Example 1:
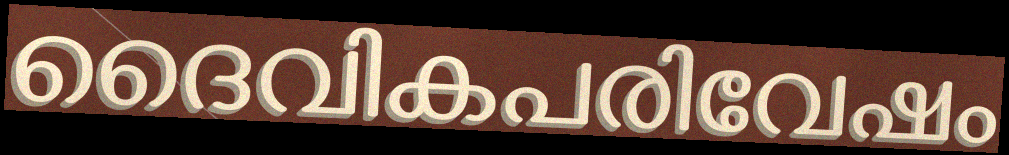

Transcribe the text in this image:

ദൈവികപരിവേഷം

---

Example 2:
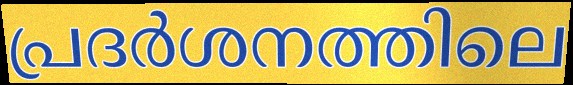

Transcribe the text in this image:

പ്രദർശനത്തിലെ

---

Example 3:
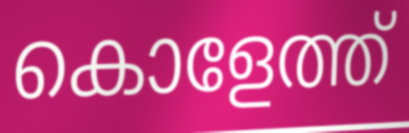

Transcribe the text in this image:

കൊളേത്ത്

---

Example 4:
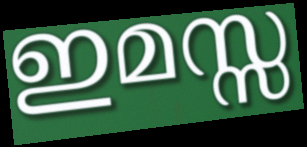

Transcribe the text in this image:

ഇമസ്സ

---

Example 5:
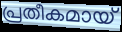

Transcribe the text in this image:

പ്രതീകമായ്